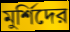
মুর্শিদের